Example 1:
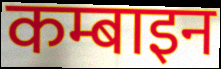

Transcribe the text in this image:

कम्बाइन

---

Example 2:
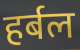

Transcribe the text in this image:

हर्बल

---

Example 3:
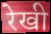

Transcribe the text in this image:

रेखी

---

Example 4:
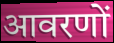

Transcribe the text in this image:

आवरणों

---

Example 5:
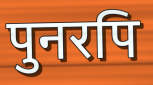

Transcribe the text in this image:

पुनरपि